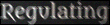
Regulating